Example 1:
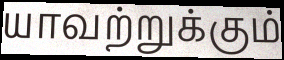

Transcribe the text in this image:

யாவற்றுக்கும்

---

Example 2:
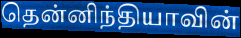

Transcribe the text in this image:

தென்னிந்தியாவின்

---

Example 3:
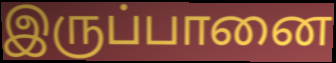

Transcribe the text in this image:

இருப்பானை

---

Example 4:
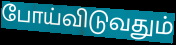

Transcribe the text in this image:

போய்விடுவதும்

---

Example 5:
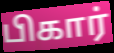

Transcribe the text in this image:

பிகார்